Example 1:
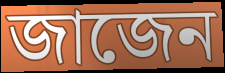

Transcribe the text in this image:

জাজেন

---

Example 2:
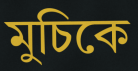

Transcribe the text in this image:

মুচিকে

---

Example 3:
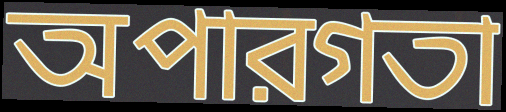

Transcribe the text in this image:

অপারগতা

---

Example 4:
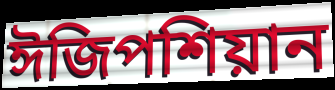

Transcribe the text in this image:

ঈজিপশিয়ান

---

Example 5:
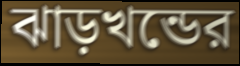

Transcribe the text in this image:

ঝাড়খন্ডের